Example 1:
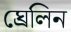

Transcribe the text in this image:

ঘ্ৰেলিন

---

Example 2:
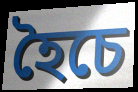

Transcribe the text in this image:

হৈচে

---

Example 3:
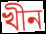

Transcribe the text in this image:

খীন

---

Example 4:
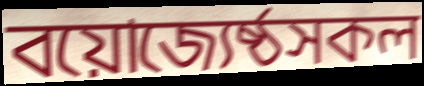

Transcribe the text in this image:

বয়োজ্যেষ্ঠসকল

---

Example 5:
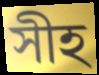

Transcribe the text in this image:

সীহ